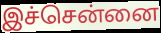
இச்சென்னை